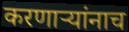
करणार्‍यांनाच